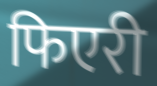
फिएरी